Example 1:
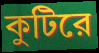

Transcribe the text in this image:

কুটিরে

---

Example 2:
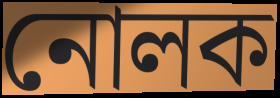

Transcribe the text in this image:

নোলক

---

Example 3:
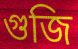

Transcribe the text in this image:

গুজি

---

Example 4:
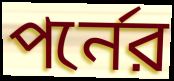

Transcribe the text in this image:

পর্নের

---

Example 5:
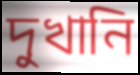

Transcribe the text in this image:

দুখানি